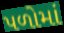
પળોમાં